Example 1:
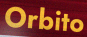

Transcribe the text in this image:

Orbito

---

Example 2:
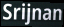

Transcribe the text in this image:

Srijnan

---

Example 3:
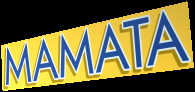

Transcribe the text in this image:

MAMATA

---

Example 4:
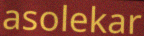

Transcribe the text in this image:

asolekar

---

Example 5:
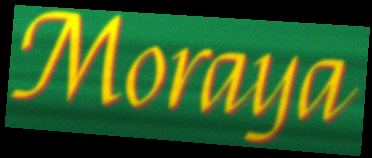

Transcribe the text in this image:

Moraya